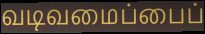
வடிவமைப்பைப்